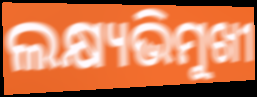
ଲକ୍ଷ୍ୟଭିମୁଖୀ